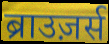
ब्राउज़र्स